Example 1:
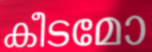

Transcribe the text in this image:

കീടമോ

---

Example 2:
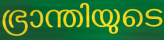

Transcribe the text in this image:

ഭ്രാന്തിയുടെ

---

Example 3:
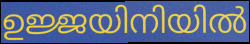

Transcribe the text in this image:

ഉജ്ജയിനിയിൽ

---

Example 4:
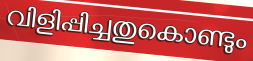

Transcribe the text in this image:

വിളിപ്പിച്ചതുകൊണ്ടും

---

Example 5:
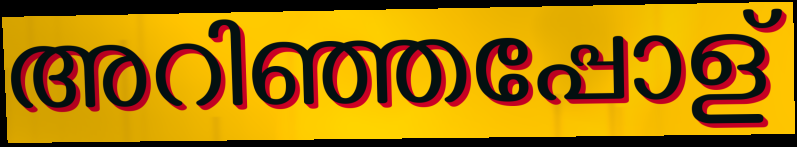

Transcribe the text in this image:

അറിഞ്ഞപ്പോള്